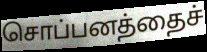
சொப்பனத்தைச்